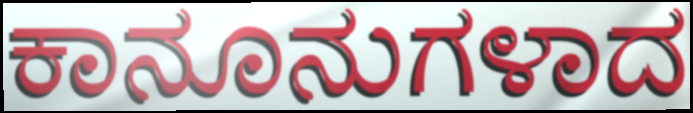
ಕಾನೂನುಗಳಾದ